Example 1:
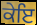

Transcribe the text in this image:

ਕੇਇ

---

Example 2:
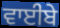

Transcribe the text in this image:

ਵਾਈਬੇ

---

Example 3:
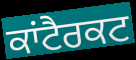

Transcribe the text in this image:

ਕਾਂਟੈਰਕਟ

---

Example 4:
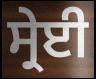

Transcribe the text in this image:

ਸ੍ਰੇਈ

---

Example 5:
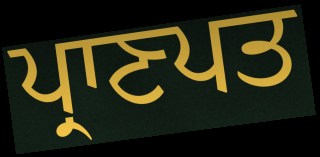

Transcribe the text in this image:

ਪ੍ਰਾਣਪਤ